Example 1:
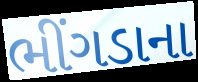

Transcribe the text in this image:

ભીંગડાના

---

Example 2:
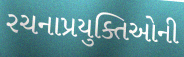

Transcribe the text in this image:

રચનાપ્રયુક્તિઓની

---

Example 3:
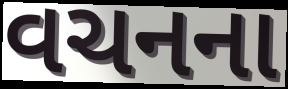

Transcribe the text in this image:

વચનના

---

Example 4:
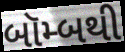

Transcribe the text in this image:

બૉમ્બથી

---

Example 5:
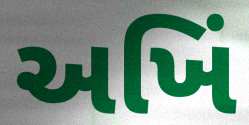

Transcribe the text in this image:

અખિં